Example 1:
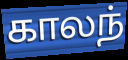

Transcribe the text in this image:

காலந்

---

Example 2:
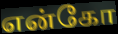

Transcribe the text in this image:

என்கோ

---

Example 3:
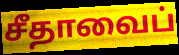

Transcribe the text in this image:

சீதாவைப்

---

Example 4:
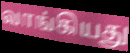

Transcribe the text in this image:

வாங்கியது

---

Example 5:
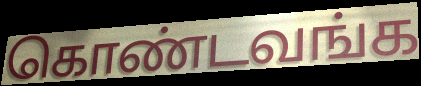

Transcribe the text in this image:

கொண்டவங்க